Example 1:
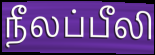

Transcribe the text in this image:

நீலப்பீலி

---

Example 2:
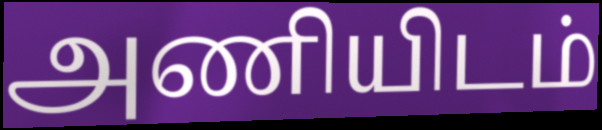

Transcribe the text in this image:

அணியிடம்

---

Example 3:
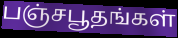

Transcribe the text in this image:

பஞ்சபூதங்கள்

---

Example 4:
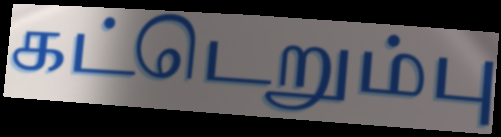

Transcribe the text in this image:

கட்டெறும்பு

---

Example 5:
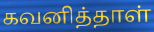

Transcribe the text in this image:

கவனித்தாள்